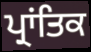
ਪ੍ਰਾਂਤਿਕ